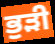
ਭੁੜੀ